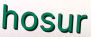
hosur